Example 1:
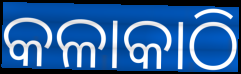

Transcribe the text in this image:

କଳାକାଠି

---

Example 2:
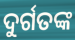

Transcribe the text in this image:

ଦୁର୍ଗତଙ୍କ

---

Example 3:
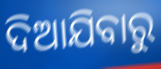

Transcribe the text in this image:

ଦିଆଯିବାରୁ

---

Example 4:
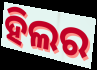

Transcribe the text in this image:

ହିଲର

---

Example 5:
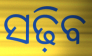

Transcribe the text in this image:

ସଢ଼ିବ